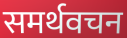
समर्थवचन